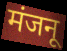
मंजनू